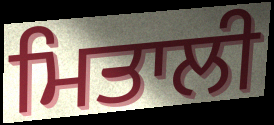
ਮਿਤਾਲੀ